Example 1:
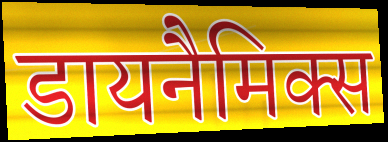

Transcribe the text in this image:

डायनैमिक्स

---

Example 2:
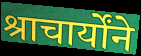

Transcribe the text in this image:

श्राचार्योंने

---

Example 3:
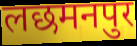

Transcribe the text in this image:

लछमनपुर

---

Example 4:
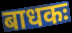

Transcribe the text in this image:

बाधकः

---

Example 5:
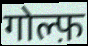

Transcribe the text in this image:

गोल्फ़